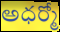
అధర్మో